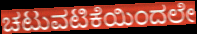
ಚಟುವಟಿಕೆಯಿಂದಲೇ